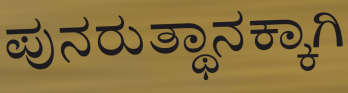
ಪುನರುತ್ಥಾನಕ್ಕಾಗಿ